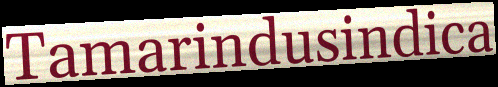
Tamarindusindica